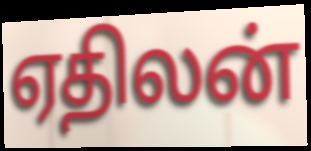
ஏதிலன்